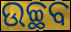
ଉଚ୍ଛବ